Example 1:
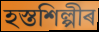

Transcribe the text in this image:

হস্তশিল্পীৰ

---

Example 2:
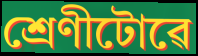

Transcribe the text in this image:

শ্ৰেণীটোৱে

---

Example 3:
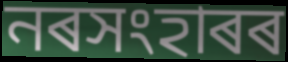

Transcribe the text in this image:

নৰসংহাৰৰ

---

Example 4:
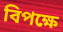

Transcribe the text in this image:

বিপক্ষে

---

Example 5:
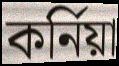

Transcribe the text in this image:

কৰ্নিয়া